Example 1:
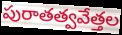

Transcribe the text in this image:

పురాతత్వవేత్తల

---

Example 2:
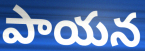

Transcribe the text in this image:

పాయన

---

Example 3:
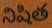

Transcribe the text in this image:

నిషిత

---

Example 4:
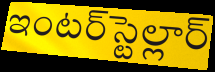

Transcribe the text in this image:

ఇంటర్‌స్టెల్లార్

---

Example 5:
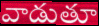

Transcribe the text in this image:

వాడుతూ